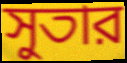
সুতার